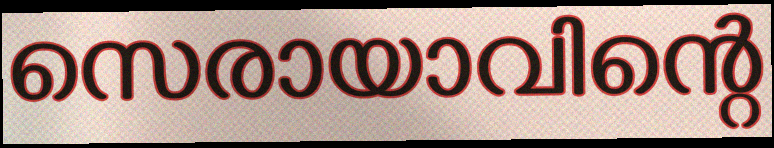
സെരായാവിന്റെ